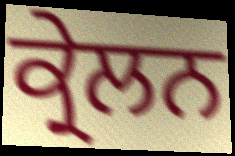
ਕ੍ਰੇਲਨ